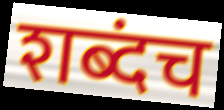
शब्दंच